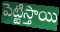
పెట్టిస్తాయి